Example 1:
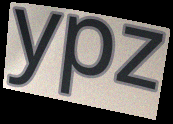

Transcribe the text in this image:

ypz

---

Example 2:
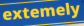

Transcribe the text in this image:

extemely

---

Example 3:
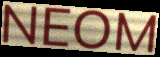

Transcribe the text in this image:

NEOM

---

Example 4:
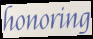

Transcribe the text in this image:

honoring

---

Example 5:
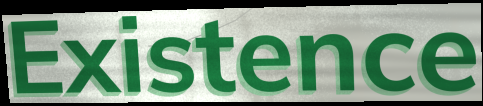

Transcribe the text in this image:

Existence